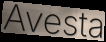
Avesta